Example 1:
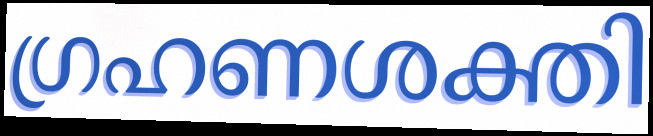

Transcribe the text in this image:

ഗ്രഹണശക്തി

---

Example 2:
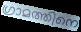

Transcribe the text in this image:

ഗ്രാമത്തിനെ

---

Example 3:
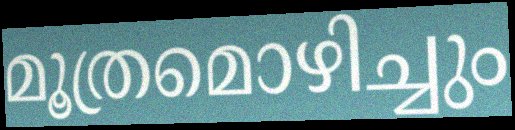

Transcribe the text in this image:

മൂത്രമൊഴിച്ചും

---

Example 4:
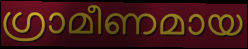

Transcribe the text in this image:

ഗ്രാമീണമായ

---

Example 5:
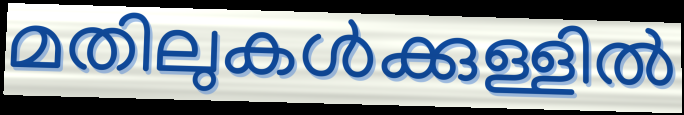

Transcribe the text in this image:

മതിലുകൾക്കുള്ളിൽ